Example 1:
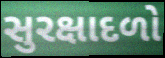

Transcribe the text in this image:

સુરક્ષાદળો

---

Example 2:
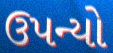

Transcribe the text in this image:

ઉપન્યો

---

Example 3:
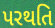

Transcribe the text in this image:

પરથતિ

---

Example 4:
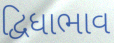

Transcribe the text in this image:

દ્વિધાભાવ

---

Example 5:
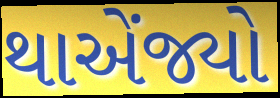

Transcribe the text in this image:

થાએંજ્યો